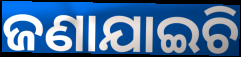
ଜଣାଯାଇଚି